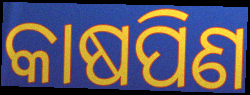
କାଷପିଣ